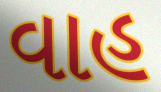
વાહ